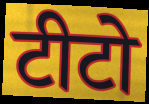
टीटो